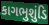
કાગભુશુંડિ